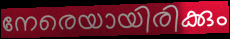
നേരെയായിരിക്കും